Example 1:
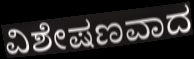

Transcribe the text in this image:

ವಿಶೇಷಣವಾದ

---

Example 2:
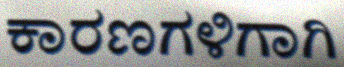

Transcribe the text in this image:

ಕಾರಣಗಳಿಗಾಗಿ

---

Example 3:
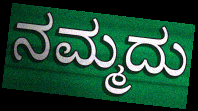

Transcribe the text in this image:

ನಮ್ಮದು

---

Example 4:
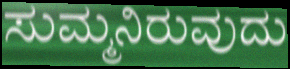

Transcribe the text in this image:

ಸುಮ್ಮನಿರುವುದು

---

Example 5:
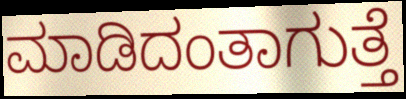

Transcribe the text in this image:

ಮಾಡಿದಂತಾಗುತ್ತೆ